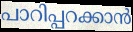
പാറിപ്പറക്കാൻ